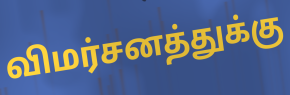
விமர்சனத்துக்கு